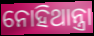
ନୋହିଥାନ୍ତ୍ରା